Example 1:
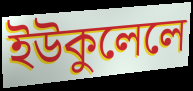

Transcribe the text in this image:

ইউকুলেলে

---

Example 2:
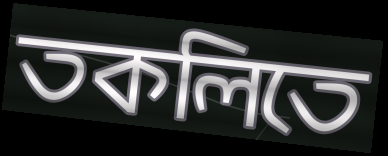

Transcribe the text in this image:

তকলিতে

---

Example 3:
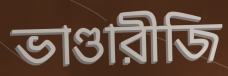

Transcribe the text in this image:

ভাণ্ডারীজি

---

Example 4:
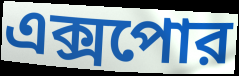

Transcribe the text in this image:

এক্সপোর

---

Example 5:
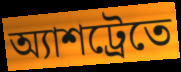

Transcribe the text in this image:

অ্যাশট্রেতে